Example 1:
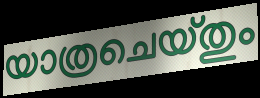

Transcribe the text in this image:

യാത്രചെയ്തും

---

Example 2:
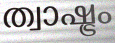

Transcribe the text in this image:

ത്വാഷ്ട്രം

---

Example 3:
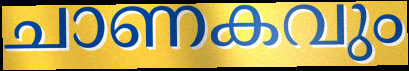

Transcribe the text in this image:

ചാണകവും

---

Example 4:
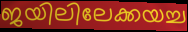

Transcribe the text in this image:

ജയിലിലേക്കയച്ച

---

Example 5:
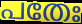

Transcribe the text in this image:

പതേഃ